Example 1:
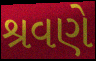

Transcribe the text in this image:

શ્રવણે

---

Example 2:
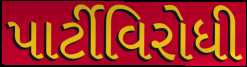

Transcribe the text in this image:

પાર્ટીવિરોધી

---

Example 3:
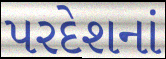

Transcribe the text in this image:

પરદેશનાં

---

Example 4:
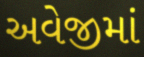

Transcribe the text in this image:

અવેજીમાં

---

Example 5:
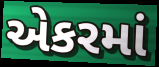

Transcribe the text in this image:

એકરમાં